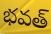
భవత్